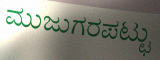
ಮುಜುಗರಪಟ್ಟು